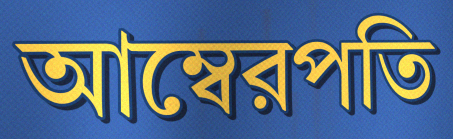
আম্বেরপতি